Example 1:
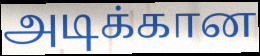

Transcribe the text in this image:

அடிக்கான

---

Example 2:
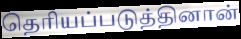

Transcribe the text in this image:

தெரியப்படுத்தினான்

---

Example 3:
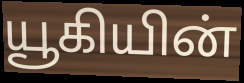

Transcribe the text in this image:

யூகியின்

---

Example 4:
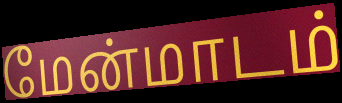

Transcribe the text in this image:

மேன்மாடம்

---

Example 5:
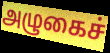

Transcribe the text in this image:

அழுகைச்